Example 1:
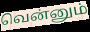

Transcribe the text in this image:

வென்னும்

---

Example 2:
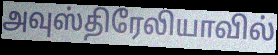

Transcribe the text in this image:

அவுஸ்திரேலியாவில்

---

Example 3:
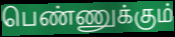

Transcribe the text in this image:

பெண்ணுக்கும்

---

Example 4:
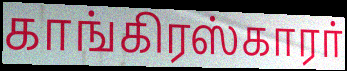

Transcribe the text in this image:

காங்கிரஸ்காரர்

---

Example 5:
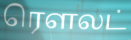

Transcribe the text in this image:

ரௌலட்